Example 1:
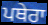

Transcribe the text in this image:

ਪਥੇਰਾ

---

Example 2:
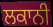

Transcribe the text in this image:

ਲਕਾਨੀ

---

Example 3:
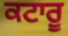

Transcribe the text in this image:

ਕਟਾਰੂ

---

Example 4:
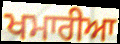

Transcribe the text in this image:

ਖਮਾਰੀਆ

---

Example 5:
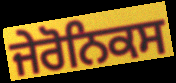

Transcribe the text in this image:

ਜੇਰੋਨਿਕਸ